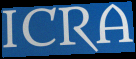
ICRA